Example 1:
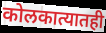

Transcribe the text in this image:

कोलकात्यातही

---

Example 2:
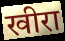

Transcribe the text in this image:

खीरा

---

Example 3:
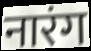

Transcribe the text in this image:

नारंग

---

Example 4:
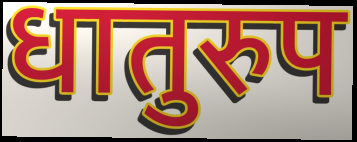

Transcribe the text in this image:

धातुरुप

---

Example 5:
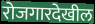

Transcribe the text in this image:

रोजगारदेखील